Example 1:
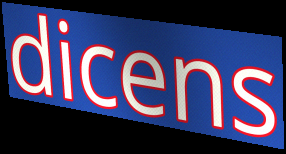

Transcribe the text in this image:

dicens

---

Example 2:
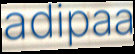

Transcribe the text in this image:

adipaa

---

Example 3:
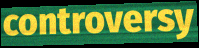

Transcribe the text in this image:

controversy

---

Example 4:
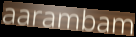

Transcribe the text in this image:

aarambam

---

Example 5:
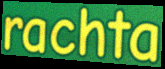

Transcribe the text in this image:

rachta